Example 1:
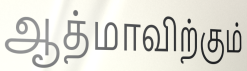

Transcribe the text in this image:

ஆத்மாவிற்கும்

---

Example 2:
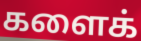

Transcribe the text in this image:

களைக்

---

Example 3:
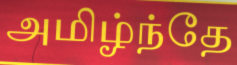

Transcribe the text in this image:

அமிழ்ந்தே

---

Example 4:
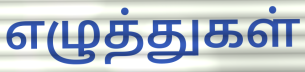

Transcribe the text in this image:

எழுத்துகள்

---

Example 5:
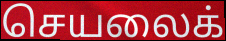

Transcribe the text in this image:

செயலைக்